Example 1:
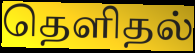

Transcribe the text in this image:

தெளிதல்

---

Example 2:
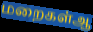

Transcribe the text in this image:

மறைகள்ஆ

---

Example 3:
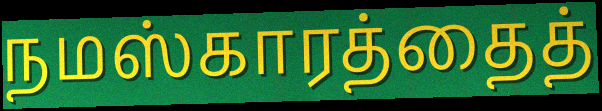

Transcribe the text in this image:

நமஸ்காரத்தைத்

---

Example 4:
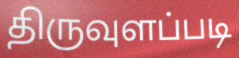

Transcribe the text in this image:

திருவுளப்படி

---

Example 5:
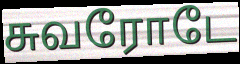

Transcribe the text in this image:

சுவரோடே